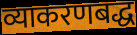
व्याकरणबद्ध